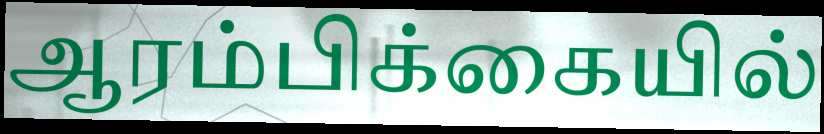
ஆரம்பிக்கையில்